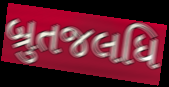
બ્રુતજલધિ